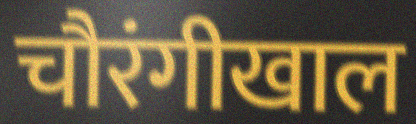
चौरंगीखाल